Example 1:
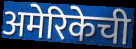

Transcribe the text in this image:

अमेरिकेची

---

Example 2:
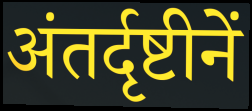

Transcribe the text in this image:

अंतर्दृष्टीनें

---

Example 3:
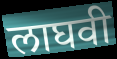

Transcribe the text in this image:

लाघवी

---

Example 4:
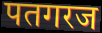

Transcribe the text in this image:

पतगरज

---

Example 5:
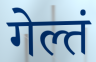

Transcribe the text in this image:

गेल्तं